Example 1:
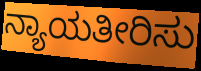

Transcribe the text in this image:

ನ್ಯಾಯತೀರಿಸು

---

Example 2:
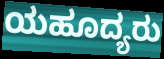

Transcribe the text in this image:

ಯಹೂದ್ಯರು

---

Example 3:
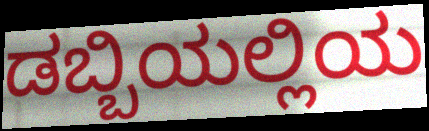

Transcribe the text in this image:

ಡಬ್ಬಿಯಲ್ಲಿಯ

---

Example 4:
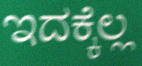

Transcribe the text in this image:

ಇದಕ್ಕೆಲ್ಲ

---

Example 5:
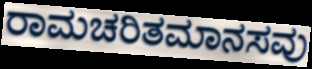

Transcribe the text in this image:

ರಾಮಚರಿತಮಾನಸವು